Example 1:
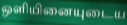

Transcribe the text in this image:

ஒளியினையுடைய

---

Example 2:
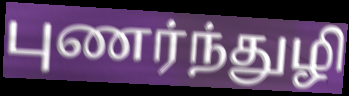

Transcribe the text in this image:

புணர்ந்துழி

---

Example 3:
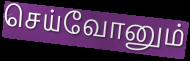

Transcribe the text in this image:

செய்வோனும்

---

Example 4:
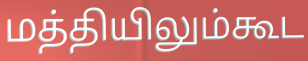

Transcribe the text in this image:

மத்தியிலும்கூட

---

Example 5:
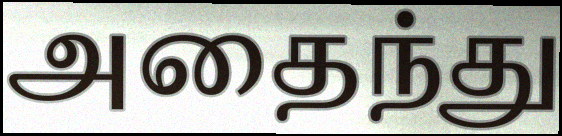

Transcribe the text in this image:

அதைந்து